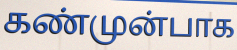
கண்முன்பாக